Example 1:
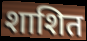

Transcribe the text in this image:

शाशित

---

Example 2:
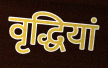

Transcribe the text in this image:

वृद्धियां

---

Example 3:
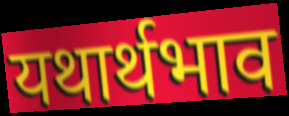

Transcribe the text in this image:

यथार्थभाव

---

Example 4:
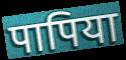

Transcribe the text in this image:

पापिया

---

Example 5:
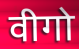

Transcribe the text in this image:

वीगो